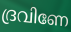
ദ്രവിണേ